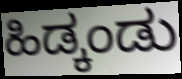
ಹಿಡ್ಕಂಡು